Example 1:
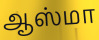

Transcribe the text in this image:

ஆஸ்மா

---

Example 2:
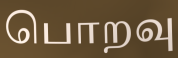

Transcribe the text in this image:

பொறவு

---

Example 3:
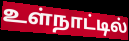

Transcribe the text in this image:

உள்நாட்டில்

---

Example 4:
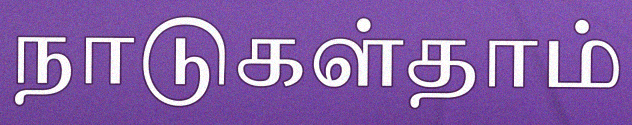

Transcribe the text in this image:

நாடுகள்தாம்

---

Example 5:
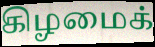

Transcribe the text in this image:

கிழமைக்